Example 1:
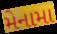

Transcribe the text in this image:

મેનામા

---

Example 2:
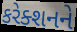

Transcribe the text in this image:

કરેક્શનને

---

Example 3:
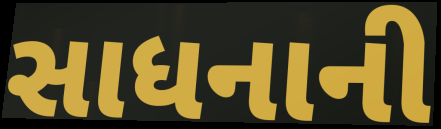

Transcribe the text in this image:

સાધનાની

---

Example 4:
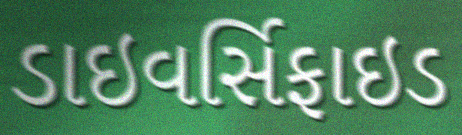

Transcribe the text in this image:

ડાઇવર્સિફાઇડ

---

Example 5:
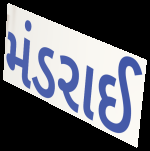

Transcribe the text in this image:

મંડરાઈ